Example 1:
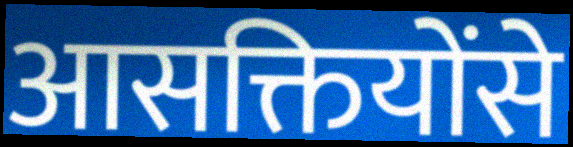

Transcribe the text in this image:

आसक्तियोंसे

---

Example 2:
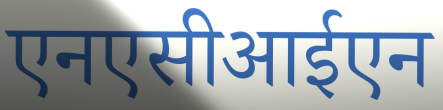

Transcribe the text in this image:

एनएसीआईएन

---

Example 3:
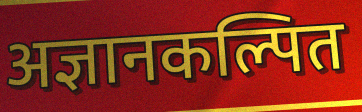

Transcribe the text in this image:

अज्ञानकल्पित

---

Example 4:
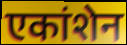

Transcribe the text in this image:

एकांशेन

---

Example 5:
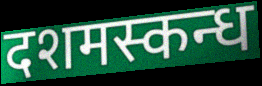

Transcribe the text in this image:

दशमस्कन्ध